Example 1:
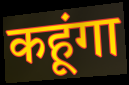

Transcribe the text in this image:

कहूंगा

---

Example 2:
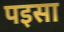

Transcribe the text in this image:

पइसा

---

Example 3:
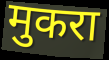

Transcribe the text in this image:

मुकरा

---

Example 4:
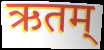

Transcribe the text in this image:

ऋतम्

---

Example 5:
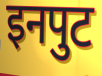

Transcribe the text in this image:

इनपुट